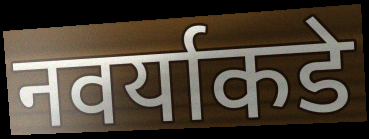
नवर्याकडे